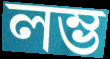
লম্ভ